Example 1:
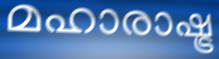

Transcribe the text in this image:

മഹാരാഷ്ട്ര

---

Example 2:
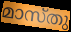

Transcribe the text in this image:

മാസ്തു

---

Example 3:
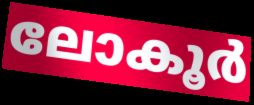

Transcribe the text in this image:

ലോകൂർ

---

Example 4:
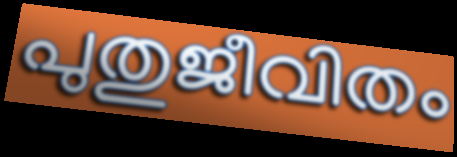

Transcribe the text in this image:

പുതുജീവിതം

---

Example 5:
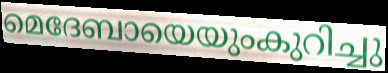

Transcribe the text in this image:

മെദേബായെയുംകുറിച്ചു